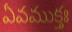
ఏవముక్తః